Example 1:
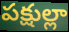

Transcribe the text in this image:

పక్షుల్లా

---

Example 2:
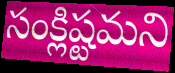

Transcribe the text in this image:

సంక్లిష్టమని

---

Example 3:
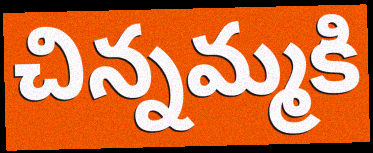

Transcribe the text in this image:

చిన్నమ్మకి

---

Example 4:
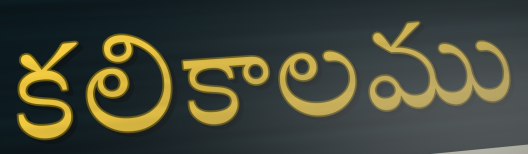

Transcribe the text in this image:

కలికాలము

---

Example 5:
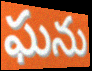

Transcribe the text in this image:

ఘను